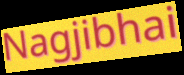
Nagjibhai